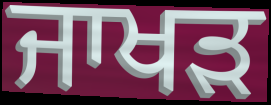
ਜਾਖੜ